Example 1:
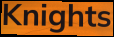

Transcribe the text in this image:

Knights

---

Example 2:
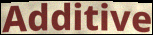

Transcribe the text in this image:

Additive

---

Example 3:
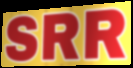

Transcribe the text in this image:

SRR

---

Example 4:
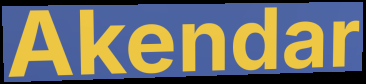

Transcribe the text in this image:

Akendar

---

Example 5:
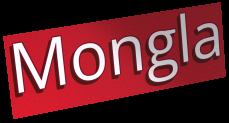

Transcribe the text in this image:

Mongla